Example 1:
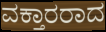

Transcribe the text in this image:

ವಕ್ತಾರರಾದ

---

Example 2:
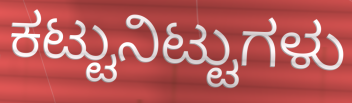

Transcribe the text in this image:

ಕಟ್ಟುನಿಟ್ಟುಗಳು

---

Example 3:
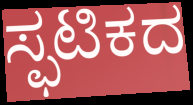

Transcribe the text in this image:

ಸ್ಫಟಿಕದ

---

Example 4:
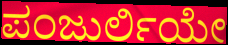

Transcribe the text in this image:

ಪಂಜುರ್ಲಿಯೇ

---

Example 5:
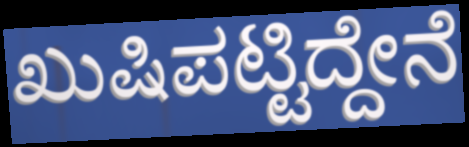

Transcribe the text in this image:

ಖುಷಿಪಟ್ಟಿದ್ದೇನೆ